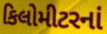
કિલોમીટરનાં